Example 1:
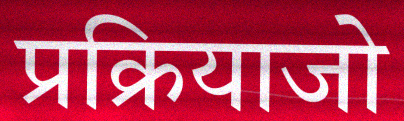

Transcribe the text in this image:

प्रक्रियाजो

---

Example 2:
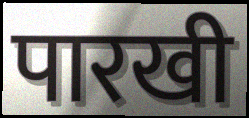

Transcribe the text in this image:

पारखी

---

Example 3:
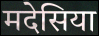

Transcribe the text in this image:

मदेसिया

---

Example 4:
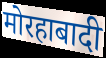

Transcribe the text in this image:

मोरहाबादी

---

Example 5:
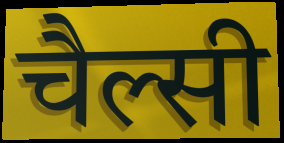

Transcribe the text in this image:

चैल्सी